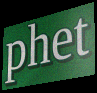
phet